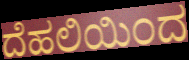
ದೆಹಲಿಯಿಂದ